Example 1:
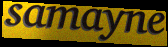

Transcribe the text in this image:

samayne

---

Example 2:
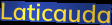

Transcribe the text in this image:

Laticauda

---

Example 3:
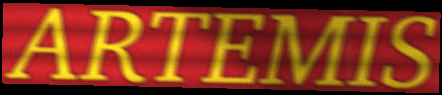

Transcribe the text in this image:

ARTEMIS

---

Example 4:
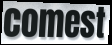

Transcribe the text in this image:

comest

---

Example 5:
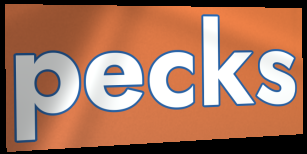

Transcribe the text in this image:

pecks